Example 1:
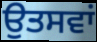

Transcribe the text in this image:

ਉਤਸਵਾਂ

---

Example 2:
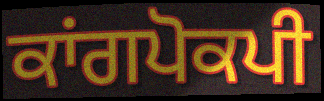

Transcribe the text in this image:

ਕਾਂਗਪੋਕਪੀ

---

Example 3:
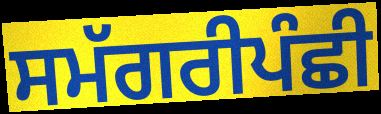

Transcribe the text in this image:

ਸਮੱਗਰੀਪੰਛੀ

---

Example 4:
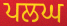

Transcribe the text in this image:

ਪਲਘ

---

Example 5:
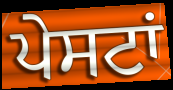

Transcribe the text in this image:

ਪੇਸਟਾਂ